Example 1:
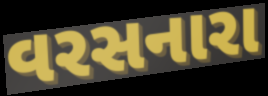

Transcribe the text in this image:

વરસનારા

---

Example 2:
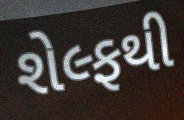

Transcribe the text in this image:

શેલ્ફથી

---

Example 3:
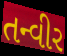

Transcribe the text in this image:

તન્વીર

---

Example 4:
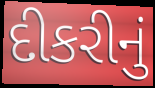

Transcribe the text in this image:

દીકરીનું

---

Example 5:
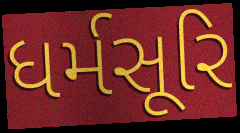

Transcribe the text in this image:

ધર્મસૂરિ